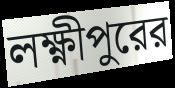
লক্ষ্ণীপুরের